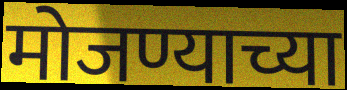
मोजण्याच्या